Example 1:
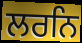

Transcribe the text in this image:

ਲਰਨਿ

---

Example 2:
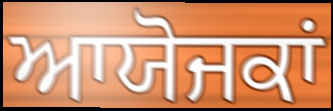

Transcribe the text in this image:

ਆਯੋਜਕਾਂ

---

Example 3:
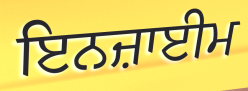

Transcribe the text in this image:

ਇਨਜ਼ਾਈਮ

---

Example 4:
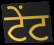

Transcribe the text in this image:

ਟੇਂਟ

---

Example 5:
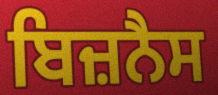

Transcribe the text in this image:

ਬਿਜ਼ਨੈਸ